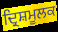
ਦ੍ਰਿਸ਼ਮੂਲਕ